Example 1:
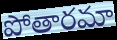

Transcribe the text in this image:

పోతారమా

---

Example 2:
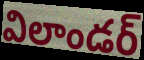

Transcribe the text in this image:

విలాండర్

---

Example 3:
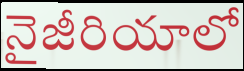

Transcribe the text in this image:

నైజీరియాలో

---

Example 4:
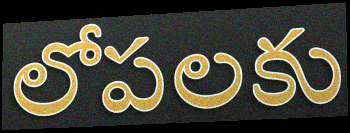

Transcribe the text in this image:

లోపలకు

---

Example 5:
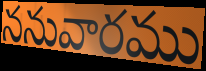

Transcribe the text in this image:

ననువారము